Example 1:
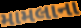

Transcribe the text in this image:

મામલાના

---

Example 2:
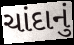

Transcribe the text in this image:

ચાંદાનું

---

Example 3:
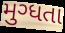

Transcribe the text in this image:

મુગ્ધતા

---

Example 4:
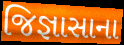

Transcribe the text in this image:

જિજ્ઞાસાના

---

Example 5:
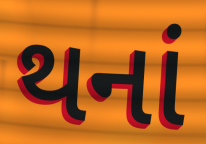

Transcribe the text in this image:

થનાં